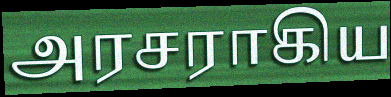
அரசராகிய